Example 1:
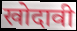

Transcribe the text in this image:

खोदावी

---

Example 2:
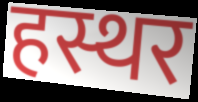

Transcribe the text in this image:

हस्थर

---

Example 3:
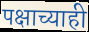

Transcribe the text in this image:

पक्षाच्याही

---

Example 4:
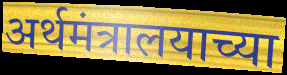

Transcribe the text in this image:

अर्थमंत्रालयाच्या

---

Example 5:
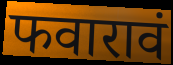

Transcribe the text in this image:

फवारावं